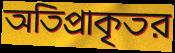
অতিপ্রাকৃতর